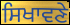
ਸਿਖਾਵਣੇ